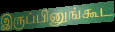
இருப்பினுங்கூட